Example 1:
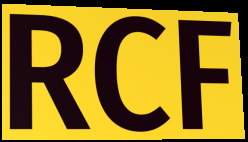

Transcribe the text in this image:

RCF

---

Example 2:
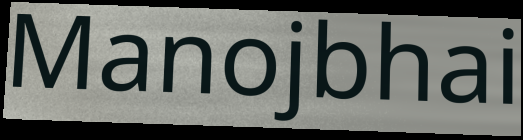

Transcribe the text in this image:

Manojbhai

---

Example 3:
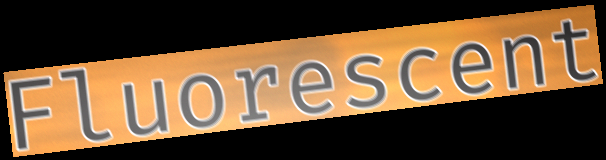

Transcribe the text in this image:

Fluorescent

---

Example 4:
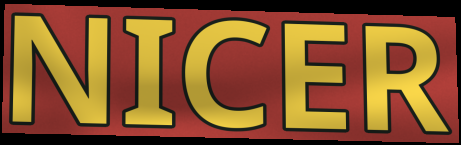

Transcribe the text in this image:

NICER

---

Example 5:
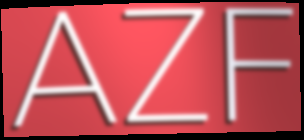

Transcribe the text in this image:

AZF